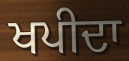
ਖਪੀਦਾ